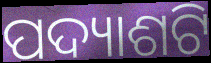
ପଦ୍ୟାଶଟି